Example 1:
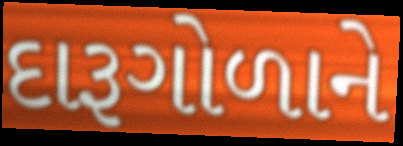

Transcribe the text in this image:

દારૂગોળાને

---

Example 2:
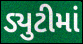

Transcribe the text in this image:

ડ્યુટીમાં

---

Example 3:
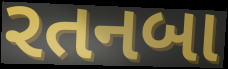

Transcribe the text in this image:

રતનબા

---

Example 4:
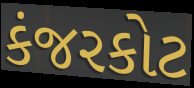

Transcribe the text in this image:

કંજરકોટ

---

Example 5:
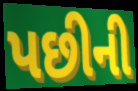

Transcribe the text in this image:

પછીની